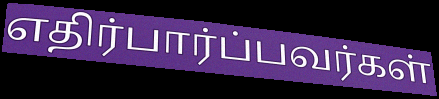
எதிர்பார்ப்பவர்கள்